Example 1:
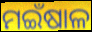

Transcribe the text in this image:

ମଇଁଷାଳ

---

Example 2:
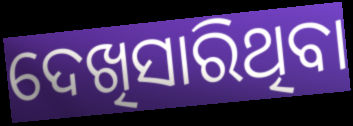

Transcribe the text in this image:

ଦେଖିସାରିଥିବା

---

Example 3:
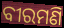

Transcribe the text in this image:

ବୀରମଣି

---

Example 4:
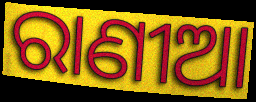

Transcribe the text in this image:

ରାଣୀଆ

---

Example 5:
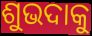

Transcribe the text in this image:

ଶୁଭଦାକୁ